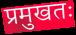
प्रमुखतः